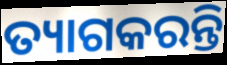
ତ୍ୟାଗକରନ୍ତି